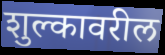
शुल्कावरील